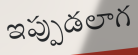
ఇప్పుడలాగ